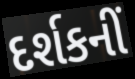
દર્શકનીં